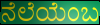
ನೆಲೆಯೆಂಬ